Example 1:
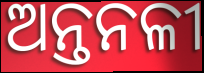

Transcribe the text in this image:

ଅନ୍ତନଳୀ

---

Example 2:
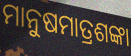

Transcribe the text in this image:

ମାନୁଷମାତ୍ରଶଙ୍କା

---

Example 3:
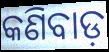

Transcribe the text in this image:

କଣିବାଡ଼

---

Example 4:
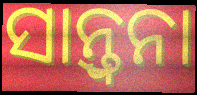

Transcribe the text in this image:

ସାନ୍ତ୍ଵନା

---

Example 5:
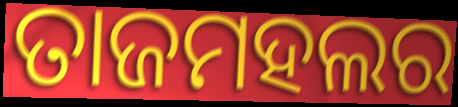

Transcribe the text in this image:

ତାଜମହଲର